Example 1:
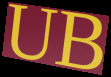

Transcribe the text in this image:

UB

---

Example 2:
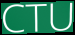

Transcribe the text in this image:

CTU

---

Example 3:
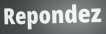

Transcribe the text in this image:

Repondez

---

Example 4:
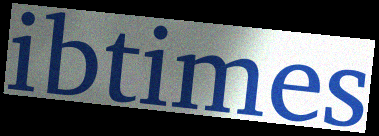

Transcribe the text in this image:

ibtimes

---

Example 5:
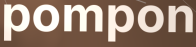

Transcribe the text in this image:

pompon